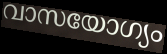
വാസയോഗ്യം